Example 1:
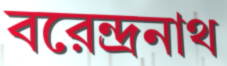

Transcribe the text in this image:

বরেন্দ্রনাথ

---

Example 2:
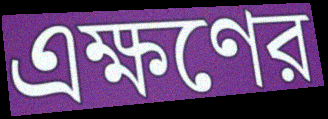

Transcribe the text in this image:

এক্ষণের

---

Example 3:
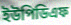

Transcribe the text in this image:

ইউপিডিএফ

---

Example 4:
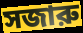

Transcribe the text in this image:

সজারু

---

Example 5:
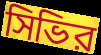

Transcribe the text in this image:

সিভির